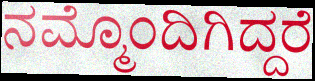
ನಮ್ಮೊಂದಿಗಿದ್ದರೆ